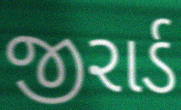
જીરાર્ડ